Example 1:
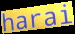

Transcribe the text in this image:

harai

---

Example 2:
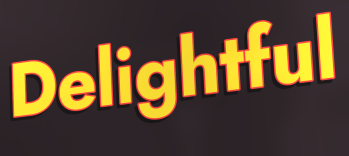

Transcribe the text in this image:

Delightful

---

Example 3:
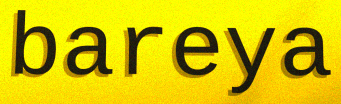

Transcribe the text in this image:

bareya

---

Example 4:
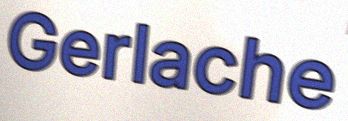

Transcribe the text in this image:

Gerlache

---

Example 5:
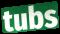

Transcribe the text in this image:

tubs